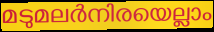
മടുമലർനിരയെല്ലാം